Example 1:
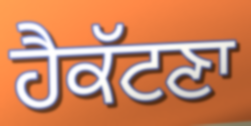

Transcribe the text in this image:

ਹੈਕੱਟਣਾ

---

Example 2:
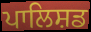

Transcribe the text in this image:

ਪਾਲਿਸ਼ਡ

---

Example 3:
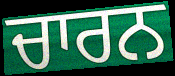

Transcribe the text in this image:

ਚਾਰਨ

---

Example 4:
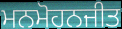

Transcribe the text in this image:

ਮਨਮੋਹਨਜੀਤ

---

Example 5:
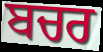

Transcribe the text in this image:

ਬਚਰ